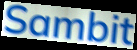
Sambit